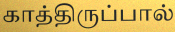
காத்திருப்பால்